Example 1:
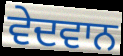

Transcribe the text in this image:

ਵੇਦਵਾਨ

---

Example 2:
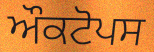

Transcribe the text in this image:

ਔਕਟੋਪਸ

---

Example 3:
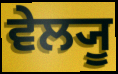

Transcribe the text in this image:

ਵੇਲ੍ਯੂ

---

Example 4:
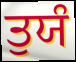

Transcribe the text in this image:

ਤੁਯੰ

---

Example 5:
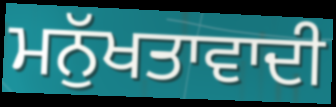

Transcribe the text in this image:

ਮਨੁੱਖਤਾਵਾਦੀ